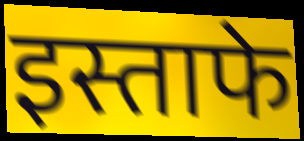
इस्ताफे